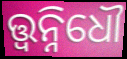
ତ୍ତ୍ଵନ୍ନିଧୌ